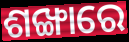
ଶଙ୍ଖାରେ